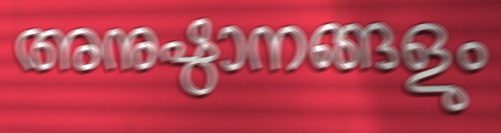
അനുഷ്ഠാനങ്ങളും